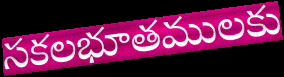
సకలభూతములకు